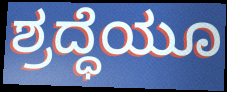
ಶ್ರದ್ಧೆಯೂ